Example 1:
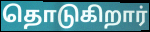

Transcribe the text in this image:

தொடுகிறார்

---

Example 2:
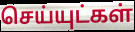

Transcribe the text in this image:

செய்யுட்கள்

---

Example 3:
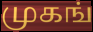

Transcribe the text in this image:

முகங்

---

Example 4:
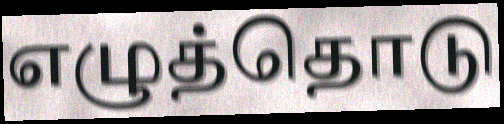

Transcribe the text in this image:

எழுத்தொடு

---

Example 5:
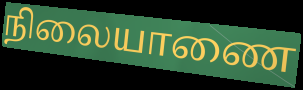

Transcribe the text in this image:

நிலையாணை